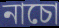
নাচো